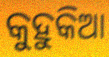
କୁହୁକିଆ